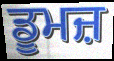
ਡੂਮਜ਼